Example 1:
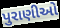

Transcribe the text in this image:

પુરાણીઓ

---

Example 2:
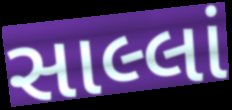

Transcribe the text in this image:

સાલ્લાં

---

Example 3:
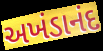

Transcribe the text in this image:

અખંડાનંદ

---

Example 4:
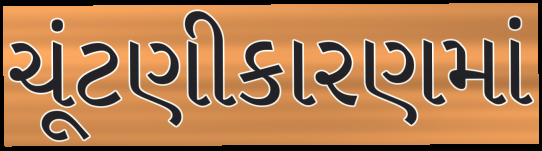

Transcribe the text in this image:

ચૂંટણીકારણમાં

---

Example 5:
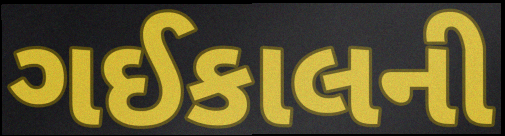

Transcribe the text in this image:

ગઈકાલની